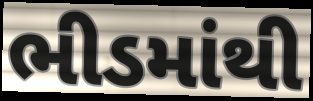
ભીડમાંથી